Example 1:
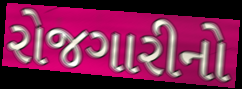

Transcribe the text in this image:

રોજગારીનો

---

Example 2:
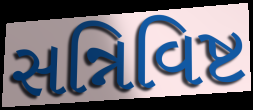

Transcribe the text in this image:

સન્નિવિષ્ટ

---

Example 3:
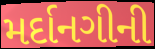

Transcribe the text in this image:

મર્દાનગીની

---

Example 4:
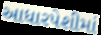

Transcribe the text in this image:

આધારપેશીમાં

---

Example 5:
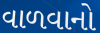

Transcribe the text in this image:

વાળવાનો